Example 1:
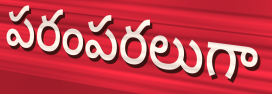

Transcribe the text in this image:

పరంపరలుగా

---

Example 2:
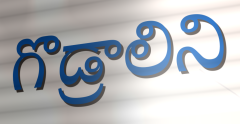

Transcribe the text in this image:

గొడ్రాలిని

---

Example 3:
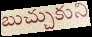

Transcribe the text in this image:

బుచ్చుకుని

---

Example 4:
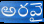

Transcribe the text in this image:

అరవై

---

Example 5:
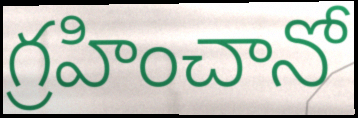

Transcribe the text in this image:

గ్రహించానో